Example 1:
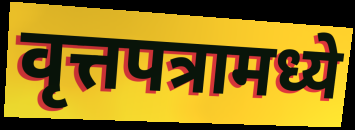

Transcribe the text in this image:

वृत्तपत्रामध्ये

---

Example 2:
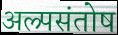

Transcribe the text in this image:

अल्पसंतोष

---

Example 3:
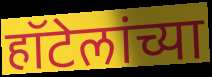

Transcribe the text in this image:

हॉटेलांच्या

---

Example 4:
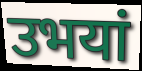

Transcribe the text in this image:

उभयां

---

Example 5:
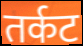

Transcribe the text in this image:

तर्कट